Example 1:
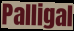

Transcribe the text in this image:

Palligal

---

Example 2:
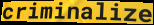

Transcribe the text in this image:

criminalize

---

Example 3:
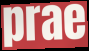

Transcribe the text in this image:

prae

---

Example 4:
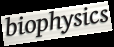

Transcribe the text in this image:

biophysics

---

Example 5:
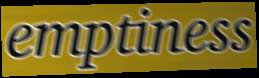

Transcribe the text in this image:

emptiness